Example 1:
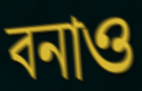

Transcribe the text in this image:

বনাও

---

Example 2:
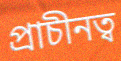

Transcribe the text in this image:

প্ৰাচীনত্ব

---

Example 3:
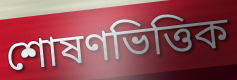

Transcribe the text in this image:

শোষণভিত্তিক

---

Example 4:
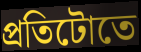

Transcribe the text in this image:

প্ৰতিটোতে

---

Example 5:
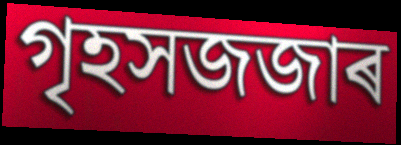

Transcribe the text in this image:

গৃহসজজাৰ